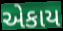
એકાય